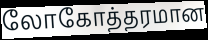
லோகோத்தரமான